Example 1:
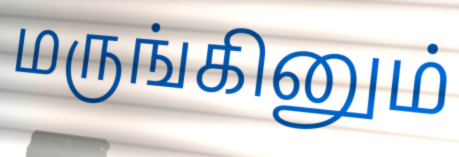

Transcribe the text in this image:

மருங்கினும்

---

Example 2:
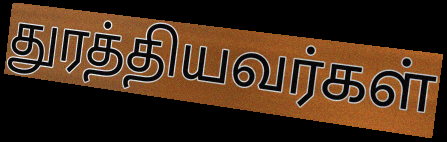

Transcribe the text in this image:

துரத்தியவர்கள்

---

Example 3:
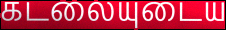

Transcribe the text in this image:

கடலையுடைய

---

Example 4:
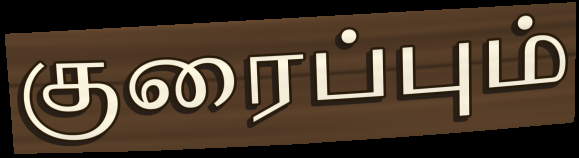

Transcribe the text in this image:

குரைப்பும்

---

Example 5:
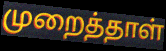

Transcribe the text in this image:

முறைத்தாள்